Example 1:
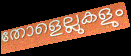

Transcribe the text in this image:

തോളെല്ലുകളും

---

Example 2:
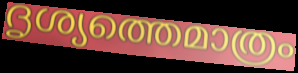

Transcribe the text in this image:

ദൃശ്യത്തെമാത്രം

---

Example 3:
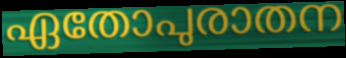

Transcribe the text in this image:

ഏതോപുരാതന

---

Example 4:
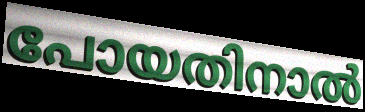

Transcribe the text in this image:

പോയതിനാൽ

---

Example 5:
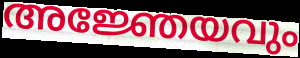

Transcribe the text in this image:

അജ്ഞേയവും